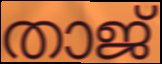
താജ്